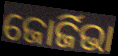
ଜୋର୍ଜିଭା